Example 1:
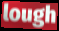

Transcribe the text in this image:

lough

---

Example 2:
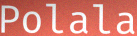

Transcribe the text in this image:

Polala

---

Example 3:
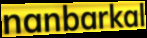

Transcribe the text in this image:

nanbarkal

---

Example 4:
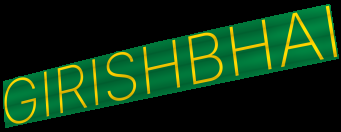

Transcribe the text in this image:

GIRISHBHAI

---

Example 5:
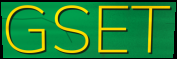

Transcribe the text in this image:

GSET